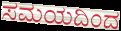
ಸಮಯದಿಂದ